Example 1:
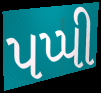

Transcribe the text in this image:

પપ્પી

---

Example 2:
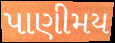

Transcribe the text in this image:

પાણીમય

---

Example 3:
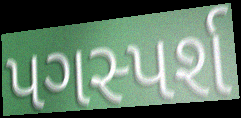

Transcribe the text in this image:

પગસ્પર્શ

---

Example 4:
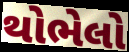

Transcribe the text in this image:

થોભેલો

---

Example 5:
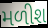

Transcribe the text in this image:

મળીશ